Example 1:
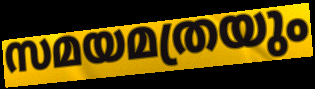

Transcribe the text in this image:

സമയമത്രയും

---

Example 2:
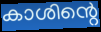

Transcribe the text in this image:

കാശിന്റെ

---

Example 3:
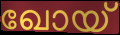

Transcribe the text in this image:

ഖോയ്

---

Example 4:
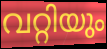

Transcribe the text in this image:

വറ്റിയും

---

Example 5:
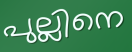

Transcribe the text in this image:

പുല്ലിനെ